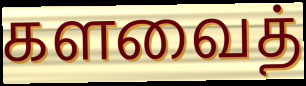
களவைத்